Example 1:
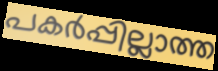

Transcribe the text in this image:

പകർപ്പില്ലാത്ത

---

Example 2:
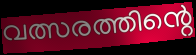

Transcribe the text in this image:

വത്സരത്തിന്റെ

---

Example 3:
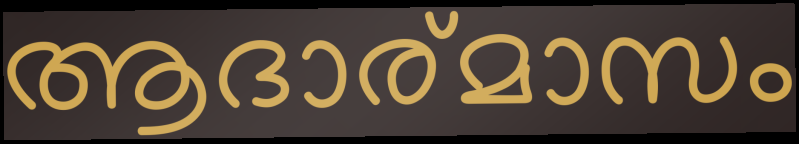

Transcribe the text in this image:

ആദാര്മാസം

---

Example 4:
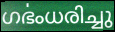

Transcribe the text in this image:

ഗൎഭംധരിച്ചു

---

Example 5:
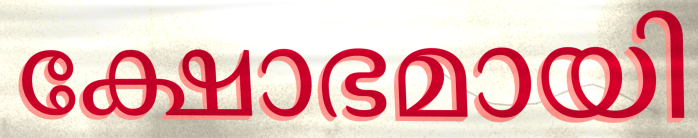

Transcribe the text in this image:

ക്ഷോഭമായി